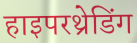
हाइपरथ्रेडिंग